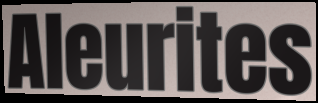
Aleurites